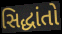
સિદ્ધાંતો